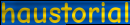
haustorial